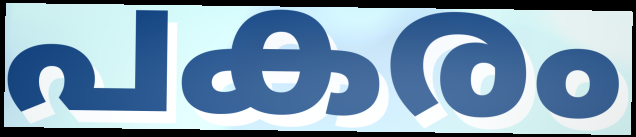
പകരം